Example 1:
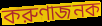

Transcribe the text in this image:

করুণাজনক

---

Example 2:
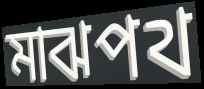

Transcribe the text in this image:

মাঝপথ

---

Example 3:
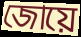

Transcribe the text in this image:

জোয়ে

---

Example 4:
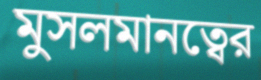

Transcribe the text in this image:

মুসলমানত্বের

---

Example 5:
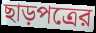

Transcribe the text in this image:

ছাড়পত্রের